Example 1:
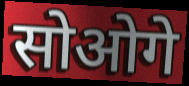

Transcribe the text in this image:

सोओगे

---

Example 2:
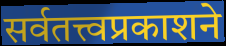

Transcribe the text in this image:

सर्वतत्त्वप्रकाशने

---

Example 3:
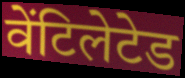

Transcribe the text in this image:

वेंटिलेटेड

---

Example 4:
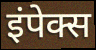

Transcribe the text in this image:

इंपेक्स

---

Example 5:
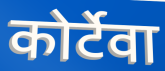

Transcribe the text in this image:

कोर्टेवा